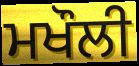
ਮਖੌਲੀ